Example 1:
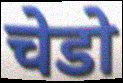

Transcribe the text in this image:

चेडो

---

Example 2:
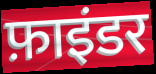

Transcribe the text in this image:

फ़ाइंडर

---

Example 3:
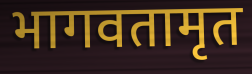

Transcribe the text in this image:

भागवतामृत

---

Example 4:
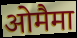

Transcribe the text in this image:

ओमैमा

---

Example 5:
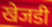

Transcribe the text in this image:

खेजडी